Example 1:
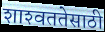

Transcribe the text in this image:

शाश्वततेसाठी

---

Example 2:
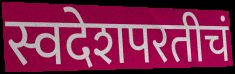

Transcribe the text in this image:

स्वदेशपरतीचं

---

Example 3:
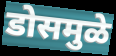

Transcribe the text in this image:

डोसमुळे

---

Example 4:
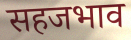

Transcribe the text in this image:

सहजभाव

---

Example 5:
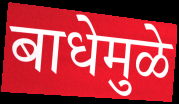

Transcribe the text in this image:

बाधेमुळे